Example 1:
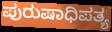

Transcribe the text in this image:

ಪುರುಷಾಧಿಪತ್ಯ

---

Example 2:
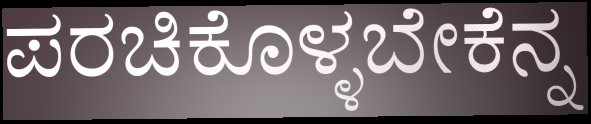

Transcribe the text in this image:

ಪರಚಿಕೊಳ್ಳಬೇಕೆನ್ನ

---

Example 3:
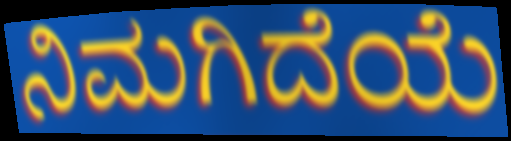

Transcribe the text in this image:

ನಿಮಗಿದೆಯೆ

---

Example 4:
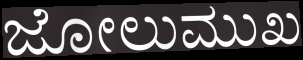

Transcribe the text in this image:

ಜೋಲುಮುಖ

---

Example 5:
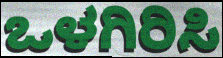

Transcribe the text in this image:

ಒಳಗಿರಿಸಿ